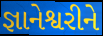
જ્ઞાનેશ્વરીને